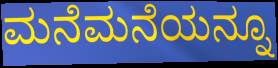
ಮನೆಮನೆಯನ್ನೂ